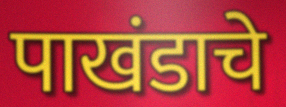
पाखंडाचे